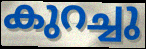
കുറച്ചു